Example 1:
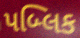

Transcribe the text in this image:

પબ્લિક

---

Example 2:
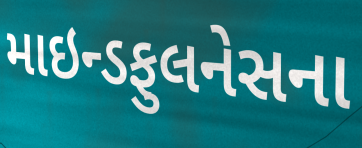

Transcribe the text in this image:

માઇન્ડફુલનેસના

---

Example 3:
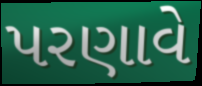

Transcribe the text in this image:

પરણાવે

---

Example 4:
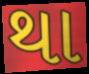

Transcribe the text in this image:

થા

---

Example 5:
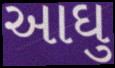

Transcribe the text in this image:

આઘુ